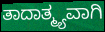
ತಾದಾತ್ಮ್ಯವಾಗಿ